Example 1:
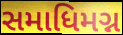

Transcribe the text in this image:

સમાધિમગ્ન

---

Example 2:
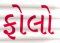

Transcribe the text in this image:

ફોલો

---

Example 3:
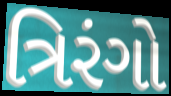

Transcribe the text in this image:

ત્રિરંગો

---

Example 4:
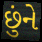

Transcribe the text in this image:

છુંને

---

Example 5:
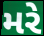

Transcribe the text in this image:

મરે